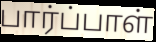
பார்ப்பாள்